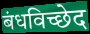
बंधविच्छेद